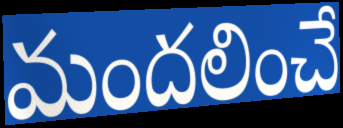
మందలించే